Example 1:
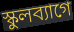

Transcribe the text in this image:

স্কুলব্যাগে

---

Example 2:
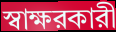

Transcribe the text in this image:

স্বাক্ষরকারী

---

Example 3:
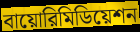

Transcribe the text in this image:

বায়োরিমিডিয়েশন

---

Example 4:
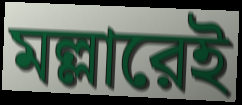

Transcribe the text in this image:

মল্লারেই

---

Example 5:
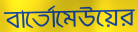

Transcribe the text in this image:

বার্তোমেউয়ের